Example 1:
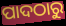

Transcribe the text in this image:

ପାଦଠାରୁ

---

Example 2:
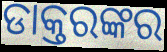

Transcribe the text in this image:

ଡାକ୍ତରଙ୍କର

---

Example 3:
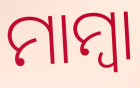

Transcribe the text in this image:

ମାମ୍ଵା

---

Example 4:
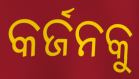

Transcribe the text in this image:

କର୍ଜନକୁ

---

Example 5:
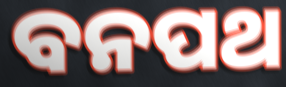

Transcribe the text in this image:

ବନପଥ